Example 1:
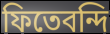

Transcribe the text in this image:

ফিতেবন্দি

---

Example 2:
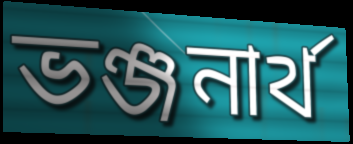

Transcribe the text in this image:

ভঞ্জনার্থ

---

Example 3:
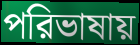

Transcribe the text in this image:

পরিভাষায়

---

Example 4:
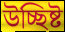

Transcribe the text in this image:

উচ্ছিষ্ট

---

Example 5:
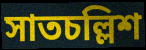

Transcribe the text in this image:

সাতচল্লিশ